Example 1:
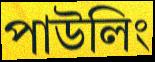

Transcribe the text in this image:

পাউলিং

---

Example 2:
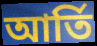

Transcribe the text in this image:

আর্তি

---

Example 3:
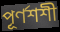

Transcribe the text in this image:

পূর্ণশশী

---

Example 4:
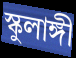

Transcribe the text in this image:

স্কুলাঙ্গী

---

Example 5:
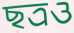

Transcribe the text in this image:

ছত্রও